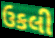
ઉકલી